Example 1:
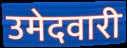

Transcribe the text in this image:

उमेदवारी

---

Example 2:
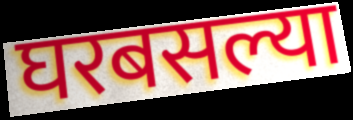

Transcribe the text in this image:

घरबसल्या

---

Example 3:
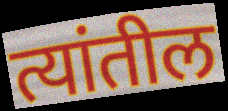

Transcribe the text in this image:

त्यांतील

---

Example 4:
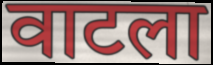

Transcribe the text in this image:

वाटला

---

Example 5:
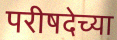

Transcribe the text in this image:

परीषदेच्या